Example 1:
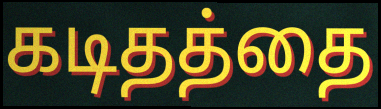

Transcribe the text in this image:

கடிதத்தை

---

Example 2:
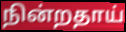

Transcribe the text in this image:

நின்றதாய்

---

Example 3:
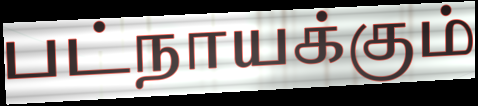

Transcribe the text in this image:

பட்நாயக்கும்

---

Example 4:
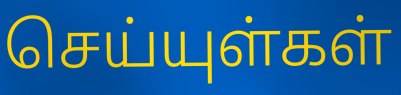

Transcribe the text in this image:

செய்யுள்கள்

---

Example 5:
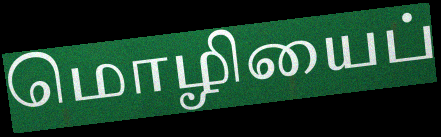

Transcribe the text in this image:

மொழியைப்